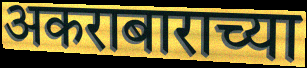
अकराबाराच्या